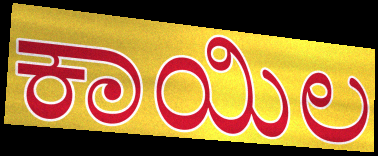
ಕಾಯಿಲ